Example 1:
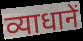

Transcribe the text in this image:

व्याधानें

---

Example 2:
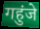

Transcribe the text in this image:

गहुंजे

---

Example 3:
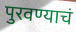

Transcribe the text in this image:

पुरवण्याचं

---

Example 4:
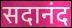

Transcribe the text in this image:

सदानंद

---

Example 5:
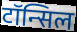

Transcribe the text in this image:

टॉन्सिल